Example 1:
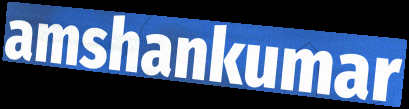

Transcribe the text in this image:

amshankumar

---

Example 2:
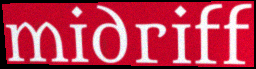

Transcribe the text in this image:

midriff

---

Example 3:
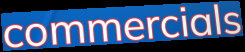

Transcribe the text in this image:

commercials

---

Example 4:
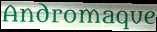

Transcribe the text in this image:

Andromaque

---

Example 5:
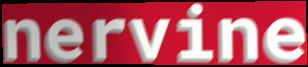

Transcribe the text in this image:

nervine